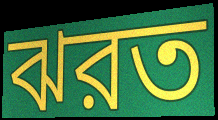
ঝরত